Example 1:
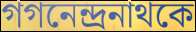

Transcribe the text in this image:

গগনেন্দ্রনাথকে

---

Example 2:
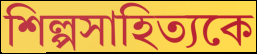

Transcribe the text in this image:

শিল্পসাহিত্যকে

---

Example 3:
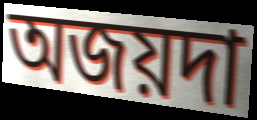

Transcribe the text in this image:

অজয়দা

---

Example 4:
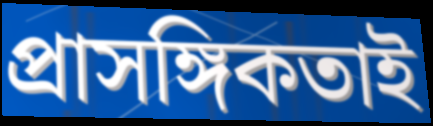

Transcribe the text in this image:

প্রাসঙ্গিকতাই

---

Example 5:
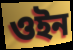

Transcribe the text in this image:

ওইন